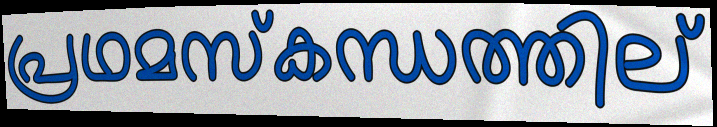
പ്രഥമസ്കന്ധത്തില്